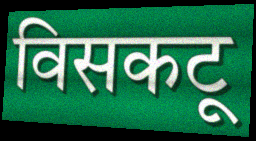
विसकटू